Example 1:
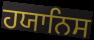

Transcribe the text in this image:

ਹਯਾਨਿਸ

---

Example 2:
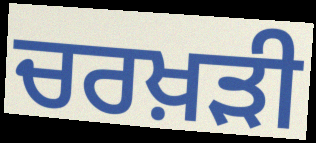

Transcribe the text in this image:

ਚਰਖ਼ੜੀ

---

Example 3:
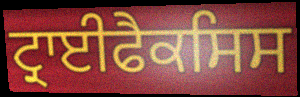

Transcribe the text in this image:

ਟ੍ਰਾਈਫੈਕਸਿਸ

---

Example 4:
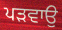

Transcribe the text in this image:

ਪੜਵਾਉ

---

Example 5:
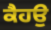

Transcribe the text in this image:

ਕੈਹਉ